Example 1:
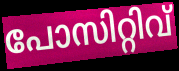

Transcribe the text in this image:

പോസിറ്റിവ്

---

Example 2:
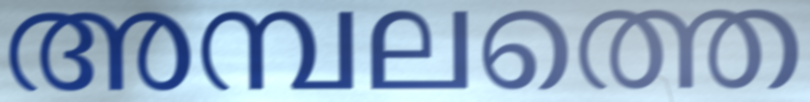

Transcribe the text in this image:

അമ്പലത്തെ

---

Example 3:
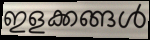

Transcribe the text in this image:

ഇളക്കങ്ങൾ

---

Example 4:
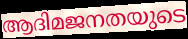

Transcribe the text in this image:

ആദിമജനതയുടെ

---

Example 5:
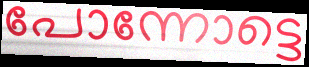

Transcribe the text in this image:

പോന്നോട്ടെ